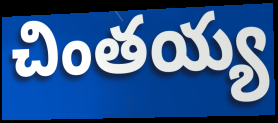
చింతయ్య